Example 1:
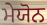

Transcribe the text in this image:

ਮੇਯੋਨ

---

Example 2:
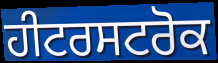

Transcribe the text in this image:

ਹੀਟਰਸਟਰੋਕ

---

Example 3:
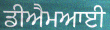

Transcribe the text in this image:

ਡੀਐਮਆਈ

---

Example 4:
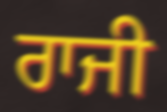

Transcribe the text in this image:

ਰਾਜੀ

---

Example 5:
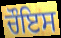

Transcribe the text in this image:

ਚੌਇਸ